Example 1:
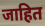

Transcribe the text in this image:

जाहित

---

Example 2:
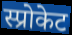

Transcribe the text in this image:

स्प्रोकेट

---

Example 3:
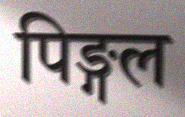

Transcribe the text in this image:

पिङ्गल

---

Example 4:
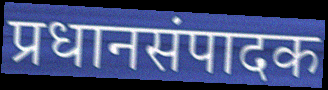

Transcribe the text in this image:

प्रधानसंपादक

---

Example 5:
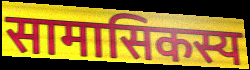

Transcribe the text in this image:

सामासिकस्य